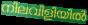
നിലവിളിയിൽ